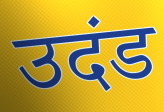
उदंड